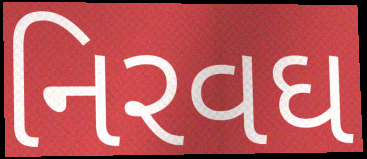
નિરવઘ